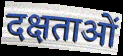
दक्षताओं